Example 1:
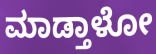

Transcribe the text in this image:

ಮಾಡ್ತಾಳೋ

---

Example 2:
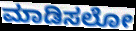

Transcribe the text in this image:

ಮಾಡಿಸಲೋ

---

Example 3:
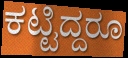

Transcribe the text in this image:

ಕಟ್ಟಿದ್ದರೂ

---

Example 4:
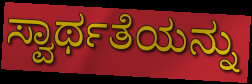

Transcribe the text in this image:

ಸ್ವಾರ್ಥತೆಯನ್ನು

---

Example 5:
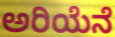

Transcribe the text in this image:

ಅರಿಯೆನೆ